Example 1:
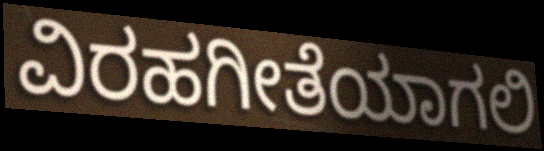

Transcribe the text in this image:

ವಿರಹಗೀತೆಯಾಗಲಿ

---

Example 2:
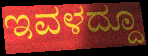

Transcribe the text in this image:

ಇವಳದ್ದೂ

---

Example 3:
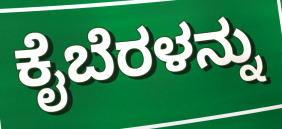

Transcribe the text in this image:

ಕೈಬೆರಳನ್ನು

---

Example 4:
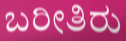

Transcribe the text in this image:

ಬರೀತಿರು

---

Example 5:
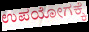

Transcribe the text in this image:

ಉಪಯೋಗಕ್ಕೆ